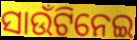
ସାଉଁଟିନେଇ